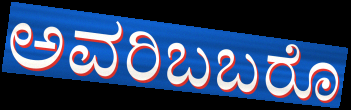
ಅವರಿಬಬರೊ